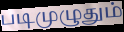
படிமுழுதும்